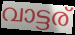
വാട്ടര്